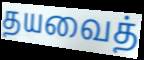
தயவைத்